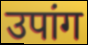
उपांग